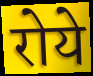
रोये